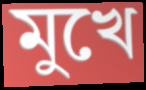
মুখে